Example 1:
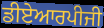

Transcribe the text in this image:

ਡੀਏਆਰਪੀਜੀ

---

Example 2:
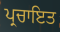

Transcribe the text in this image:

ਪ੍ਰਚਾਇਤ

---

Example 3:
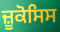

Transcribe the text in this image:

ਜ਼ੂਕੋਸਿਸ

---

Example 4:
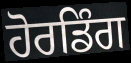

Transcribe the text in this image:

ਹੋਰਡਿੰਗ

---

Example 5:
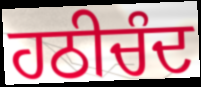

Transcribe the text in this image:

ਹਠੀਚੰਦ